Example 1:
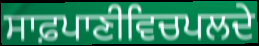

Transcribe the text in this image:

ਸਾਫ਼ਪਾਣੀਵਿਚਪਲਦੇ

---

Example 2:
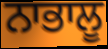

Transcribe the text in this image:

ਨਾਭਾਲੂ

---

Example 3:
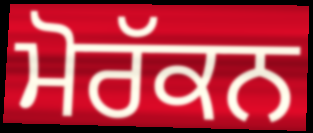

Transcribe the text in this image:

ਮੋਰੱਕਨ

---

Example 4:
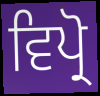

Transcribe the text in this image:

ਵਿਪ੍ਰੋ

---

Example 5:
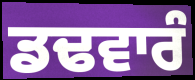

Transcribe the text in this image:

ਡਢਵਾਰੰ